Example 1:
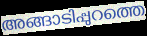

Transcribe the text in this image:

അങ്ങാടിപ്പുറത്തെ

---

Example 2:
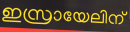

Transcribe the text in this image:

ഇസ്രായേലിന്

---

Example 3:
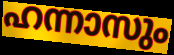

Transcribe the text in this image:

ഹന്നാസും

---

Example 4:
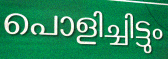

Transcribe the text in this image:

പൊളിച്ചിട്ടും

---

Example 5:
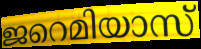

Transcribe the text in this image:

ജറെമിയാസ്